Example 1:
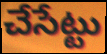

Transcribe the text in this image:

చేసేట్టు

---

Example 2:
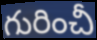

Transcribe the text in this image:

గురించీ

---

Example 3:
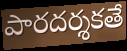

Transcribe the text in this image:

పారదర్శకతే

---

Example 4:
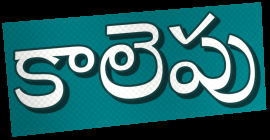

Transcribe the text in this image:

కాలెపు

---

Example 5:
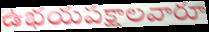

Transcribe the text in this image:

ఉభయపక్షాలవారూ